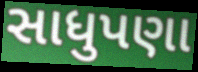
સાધુપણા